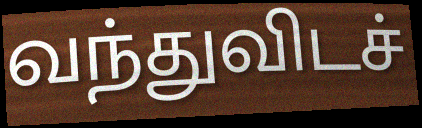
வந்துவிடச்